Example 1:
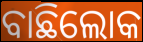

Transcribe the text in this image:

ବାଛିଲୋକ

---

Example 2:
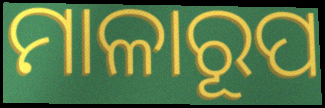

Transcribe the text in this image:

ମାଳାରୂପ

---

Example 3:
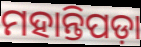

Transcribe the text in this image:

ମହାନ୍ତିପଡ଼ା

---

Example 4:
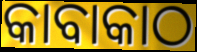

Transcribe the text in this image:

କାବାକାଠ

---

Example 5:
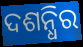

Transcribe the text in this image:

ଦଶନ୍ଧିର